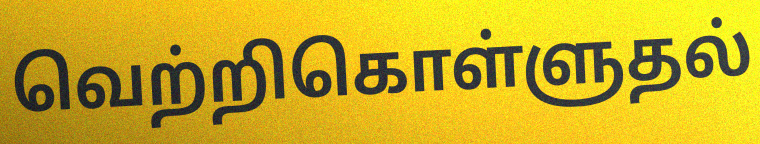
வெற்றிகொள்ளுதல்